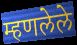
म्हणलेले